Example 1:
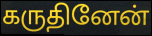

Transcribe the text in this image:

கருதினேன்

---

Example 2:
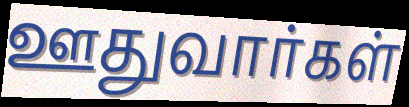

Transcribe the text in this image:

ஊதுவார்கள்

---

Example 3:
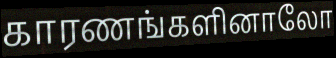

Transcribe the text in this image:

காரணங்களினாலோ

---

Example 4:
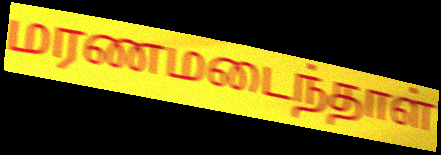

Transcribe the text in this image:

மரணமடைந்தாள்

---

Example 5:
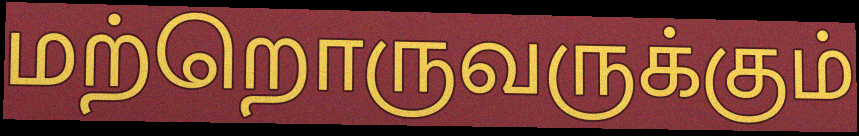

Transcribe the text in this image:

மற்றொருவருக்கும்